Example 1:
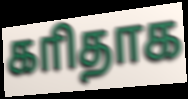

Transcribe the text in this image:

கரிதாக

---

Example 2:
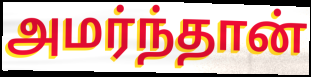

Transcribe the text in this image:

அமர்ந்தான்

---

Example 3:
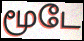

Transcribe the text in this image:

மூடே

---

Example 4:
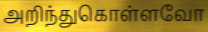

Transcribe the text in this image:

அறிந்துகொள்ளவோ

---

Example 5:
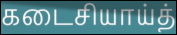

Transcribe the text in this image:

கடைசியாய்த்